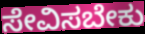
ಸೇವಿಸಬೇಕು